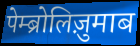
पेम्ब्रोलिज़ुमाब